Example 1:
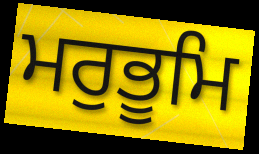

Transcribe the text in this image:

ਮਰੁਭੂਮਿ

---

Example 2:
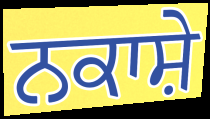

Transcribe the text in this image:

ਨਕਾਸ਼ੇ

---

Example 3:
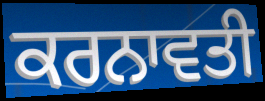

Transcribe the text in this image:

ਕਰਨਾਵਤੀ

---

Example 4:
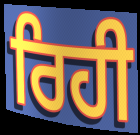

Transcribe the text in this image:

ਰਿਹੀ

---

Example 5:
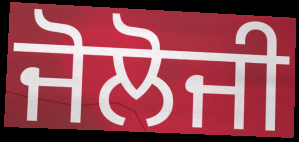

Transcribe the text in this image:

ਜੋਲੋਜੀ